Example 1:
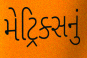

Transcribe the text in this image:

મેટ્રિક્સનું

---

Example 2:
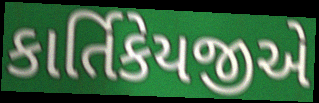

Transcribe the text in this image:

કાર્તિકેયજીએ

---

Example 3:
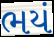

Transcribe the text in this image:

ભયં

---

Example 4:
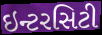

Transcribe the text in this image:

ઇન્ટરસિટી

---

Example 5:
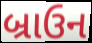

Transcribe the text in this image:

બ્રાઉન